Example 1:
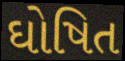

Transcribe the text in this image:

ઘોષિત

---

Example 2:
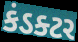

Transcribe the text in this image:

કંડક્ટર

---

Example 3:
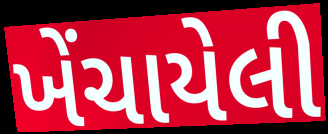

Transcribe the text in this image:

ખેંચાયેલી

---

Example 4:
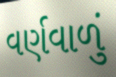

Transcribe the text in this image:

વર્ણવાળું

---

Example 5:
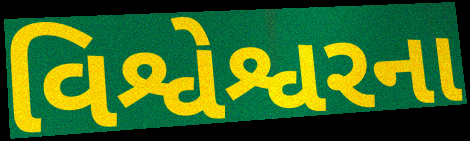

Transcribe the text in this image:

વિશ્વેશ્વરના